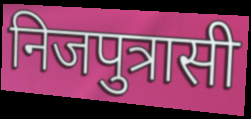
निजपुत्रासी